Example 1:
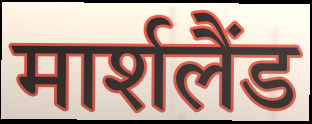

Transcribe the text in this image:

मार्शलैंड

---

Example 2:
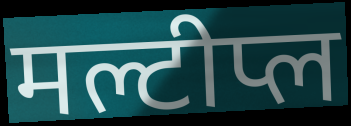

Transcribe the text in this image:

मल्टीप्ल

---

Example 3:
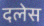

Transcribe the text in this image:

दलेस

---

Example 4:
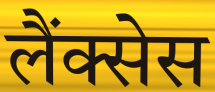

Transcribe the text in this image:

लैंक्सेस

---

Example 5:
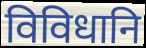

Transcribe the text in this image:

विविधानि